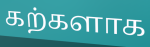
கற்களாக